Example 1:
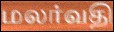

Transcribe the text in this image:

மலர்வதி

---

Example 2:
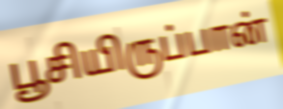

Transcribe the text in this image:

பூசியிருப்பான்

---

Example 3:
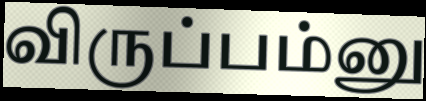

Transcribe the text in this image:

விருப்பம்னு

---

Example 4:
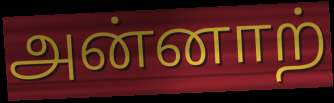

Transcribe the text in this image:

அன்னாற்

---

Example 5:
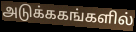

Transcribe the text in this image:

அடுக்ககங்களில்